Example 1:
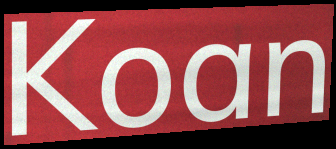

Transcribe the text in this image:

Koan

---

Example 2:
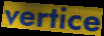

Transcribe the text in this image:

vertice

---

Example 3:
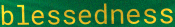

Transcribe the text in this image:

blessedness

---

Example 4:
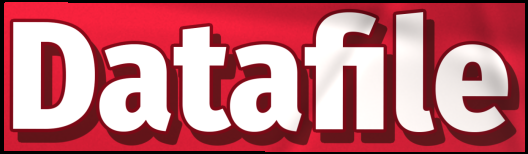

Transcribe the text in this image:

Datafile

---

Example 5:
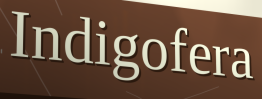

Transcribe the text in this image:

Indigofera